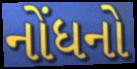
નોંધનો